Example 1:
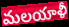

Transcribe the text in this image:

మలయాళీ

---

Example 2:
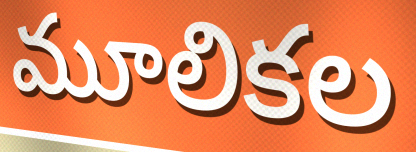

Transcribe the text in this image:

మూలికల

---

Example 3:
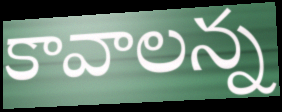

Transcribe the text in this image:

కావాలన్న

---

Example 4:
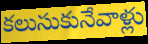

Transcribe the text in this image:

కలుసుకునేవాళ్లు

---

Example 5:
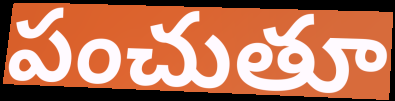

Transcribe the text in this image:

పంచుతూ